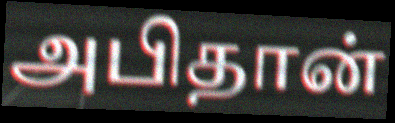
அபிதான்